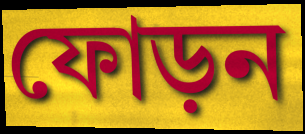
ফোড়ন